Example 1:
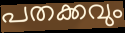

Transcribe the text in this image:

പതക്കവും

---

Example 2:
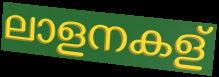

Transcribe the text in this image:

ലാളനകള്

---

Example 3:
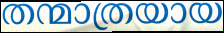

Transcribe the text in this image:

തന്മാത്രയായ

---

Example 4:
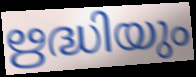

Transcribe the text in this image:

ഋദ്ധിയും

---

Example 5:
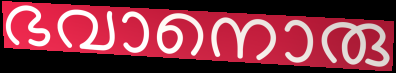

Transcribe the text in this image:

ഭവാനൊരു